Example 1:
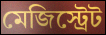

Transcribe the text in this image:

মেজিস্ট্রেট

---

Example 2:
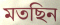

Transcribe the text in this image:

মতছিন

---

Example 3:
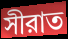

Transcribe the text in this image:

সীরাত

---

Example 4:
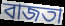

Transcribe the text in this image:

বাজতা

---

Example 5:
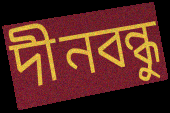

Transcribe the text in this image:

দীনবন্ধু